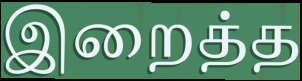
இறைத்த